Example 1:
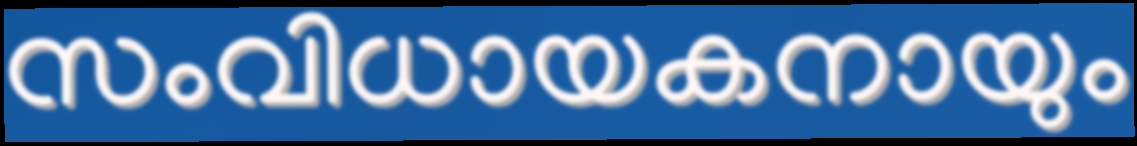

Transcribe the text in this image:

സംവിധായകനായും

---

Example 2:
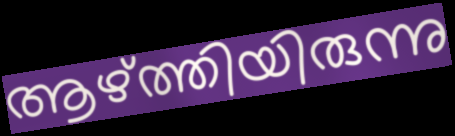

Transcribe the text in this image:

ആഴ്ത്തിയിരുന്നു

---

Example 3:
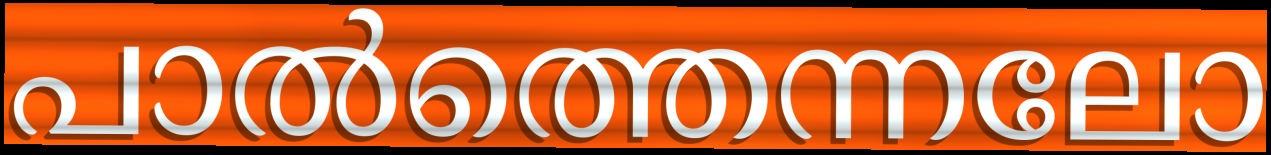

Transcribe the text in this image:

പാൽത്തെന്നലോ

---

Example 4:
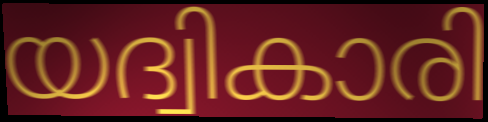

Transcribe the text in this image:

യദ്വികാരി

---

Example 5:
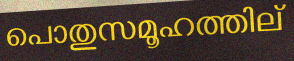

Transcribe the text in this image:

പൊതുസമൂഹത്തില്